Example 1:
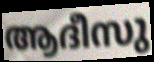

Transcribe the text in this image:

ആദീസു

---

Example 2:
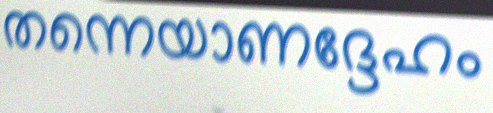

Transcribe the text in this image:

തന്നെയാണദ്ദേഹം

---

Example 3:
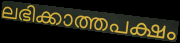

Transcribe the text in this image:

ലഭിക്കാത്തപക്ഷം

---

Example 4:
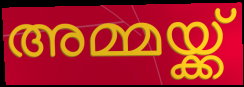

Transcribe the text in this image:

അമ്മയ്ക്ക്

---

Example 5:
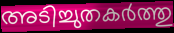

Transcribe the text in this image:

അടിച്ചുതകർത്തു